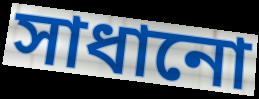
সাধানো